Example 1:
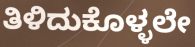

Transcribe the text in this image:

ತಿಳಿದುಕೊಳ್ಳಲೇ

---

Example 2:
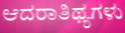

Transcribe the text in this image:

ಆದರಾತಿಥ್ಯಗಳು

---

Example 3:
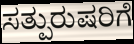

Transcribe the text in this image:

ಸತ್ಪುರುಷರಿಗೆ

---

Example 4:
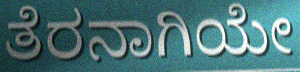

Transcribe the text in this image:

ತೆರನಾಗಿಯೇ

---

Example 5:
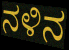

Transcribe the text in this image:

ನಳಿನ